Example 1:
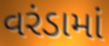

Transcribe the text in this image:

વરંડામાં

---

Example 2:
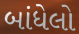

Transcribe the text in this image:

બાંધેલો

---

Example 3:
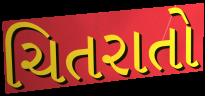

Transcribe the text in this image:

ચિતરાતો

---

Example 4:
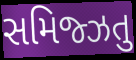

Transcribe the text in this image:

સમિજ્ઝતુ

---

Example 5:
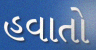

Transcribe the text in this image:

હવાતો